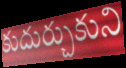
కుదుర్చుకుని